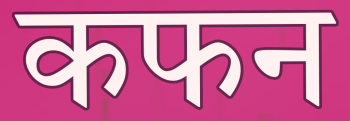
कफन